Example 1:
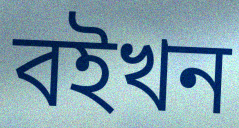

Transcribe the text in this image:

বইখন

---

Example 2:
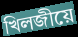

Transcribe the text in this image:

খিলজীয়ে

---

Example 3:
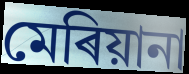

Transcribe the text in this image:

মেৰিয়ানা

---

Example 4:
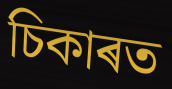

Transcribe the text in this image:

চিকাৰত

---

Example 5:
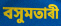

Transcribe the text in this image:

বসুমতাৰী